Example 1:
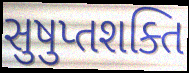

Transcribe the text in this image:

સુષુપ્તશક્તિ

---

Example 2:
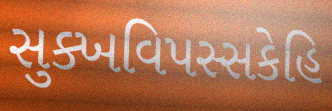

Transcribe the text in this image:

સુક્ખવિપસ્સકેહિ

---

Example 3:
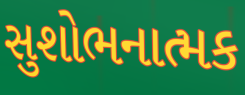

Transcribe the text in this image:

સુશોભનાત્મક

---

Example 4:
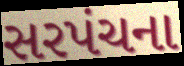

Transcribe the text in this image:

સરપંચના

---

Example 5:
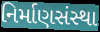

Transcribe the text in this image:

નિર્માણસંસ્થા